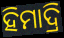
ହିମାଦ୍ରି